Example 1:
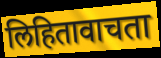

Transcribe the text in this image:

लिहितावाचता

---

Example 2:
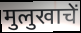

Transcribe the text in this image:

मुलुखाचें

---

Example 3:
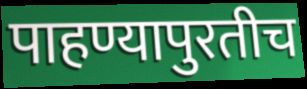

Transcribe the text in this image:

पाहण्यापुरतीच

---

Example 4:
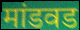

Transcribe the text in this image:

मांडवड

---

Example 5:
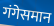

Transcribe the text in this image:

गंगेसमान